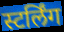
स्टर्लिंग